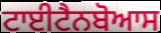
ਟਾਈਟੈਨਬੋਆਸ